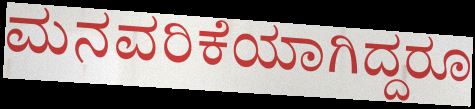
ಮನವರಿಕೆಯಾಗಿದ್ದರೂ